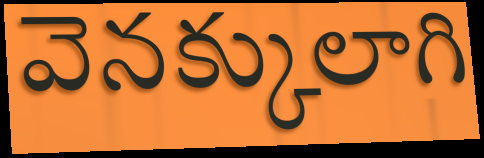
వెనక్కులాగి